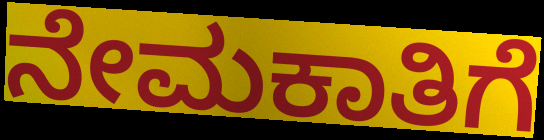
ನೇಮಕಾತಿಗೆ